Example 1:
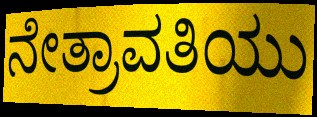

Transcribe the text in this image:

ನೇತ್ರಾವತಿಯು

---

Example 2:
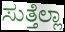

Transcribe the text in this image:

ಸುತ್ತೆಲ್ಲಾ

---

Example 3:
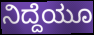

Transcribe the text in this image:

ನಿದ್ದೆಯೂ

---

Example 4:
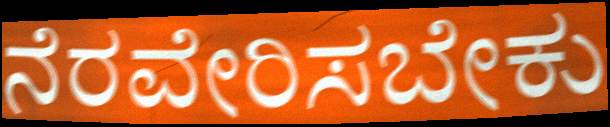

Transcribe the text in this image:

ನೆರವೇರಿಸಬೇಕು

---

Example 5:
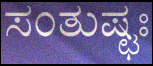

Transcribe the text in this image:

ಸಂತುಷ್ಟಃ